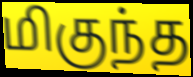
மிகுந்த